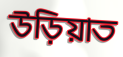
উড়িয়াত